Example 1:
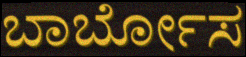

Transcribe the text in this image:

ಬಾರ್ಬೋಸ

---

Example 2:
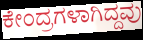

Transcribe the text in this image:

ಕೇಂದ್ರಗಳಾಗಿದ್ದವು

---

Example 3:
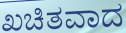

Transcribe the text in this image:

ಖಚಿತವಾದ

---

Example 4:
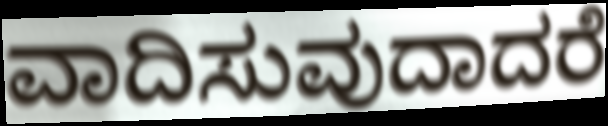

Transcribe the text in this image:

ವಾದಿಸುವುದಾದರೆ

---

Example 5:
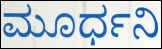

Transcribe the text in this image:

ಮೂರ್ಧನಿ